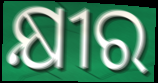
କ୍ଷୀର